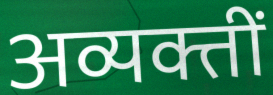
अव्यक्तीं